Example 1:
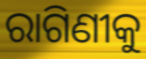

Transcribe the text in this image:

ରାଗିଣୀକୁ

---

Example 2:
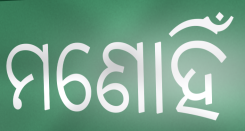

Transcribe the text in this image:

ମଣୋହିଁ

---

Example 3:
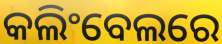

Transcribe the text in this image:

କଲିଂବେଲରେ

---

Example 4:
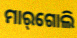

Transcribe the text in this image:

ମାର୍‌ଗୋଲି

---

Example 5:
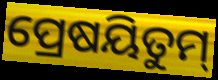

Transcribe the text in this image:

ପ୍ରେଷୟିତୁମ୍